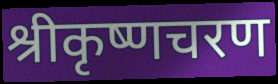
श्रीकृष्णचरण